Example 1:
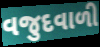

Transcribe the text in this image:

વજુદવાળી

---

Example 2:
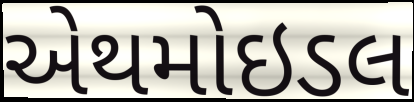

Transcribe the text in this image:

એથમોઇડલ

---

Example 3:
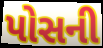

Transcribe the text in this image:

પોસની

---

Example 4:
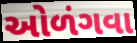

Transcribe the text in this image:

ઓળંગવા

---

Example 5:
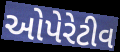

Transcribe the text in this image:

ઓપેરેટીવ